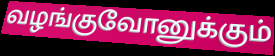
வழங்குவோனுக்கும்